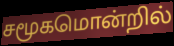
சமூகமொன்றில்